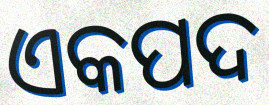
ଏକପଦ